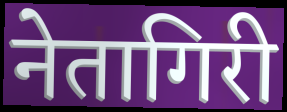
नेतागिरी